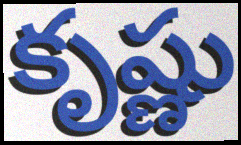
కృష్ణు